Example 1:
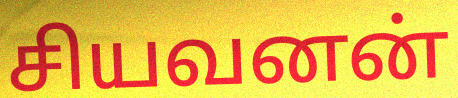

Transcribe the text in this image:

சியவனன்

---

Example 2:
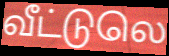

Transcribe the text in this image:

வீட்டுலெ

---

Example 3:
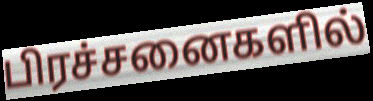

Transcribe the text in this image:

பிரச்சனைகளில்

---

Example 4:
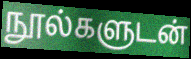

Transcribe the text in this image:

நூல்களுடன்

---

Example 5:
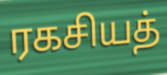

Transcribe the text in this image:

ரகசியத்